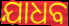
ଯାଧବ